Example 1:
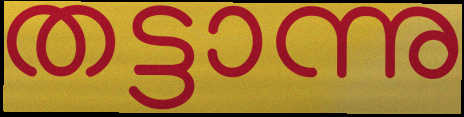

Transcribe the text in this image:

തട്ടാന്നു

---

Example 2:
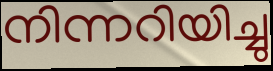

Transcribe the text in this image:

നിന്നറിയിച്ചു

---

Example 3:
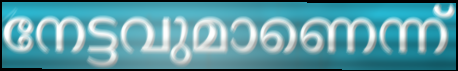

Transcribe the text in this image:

നേട്ടവുമാണെന്ന്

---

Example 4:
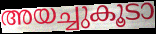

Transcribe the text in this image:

അയച്ചുകൂടാ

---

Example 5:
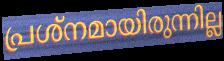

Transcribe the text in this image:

പ്രശ്നമായിരുന്നില്ല